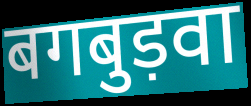
बगबुड़वा